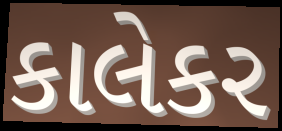
કાલેકર